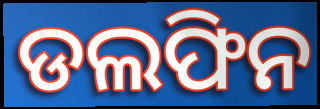
ଡଲଫିନ